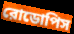
রোডোপিস